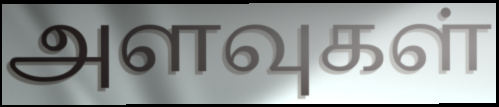
அளவுகள்